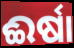
ଈର୍ଷା